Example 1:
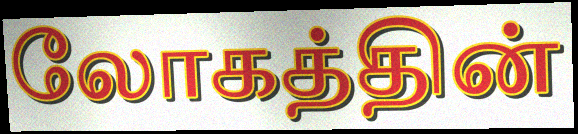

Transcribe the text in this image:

லோகத்தின்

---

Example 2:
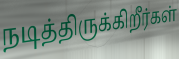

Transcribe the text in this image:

நடித்திருக்கிறீர்கள்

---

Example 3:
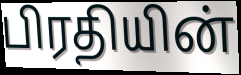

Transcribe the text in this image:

பிரதியின்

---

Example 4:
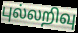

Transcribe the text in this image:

புல்லறிவு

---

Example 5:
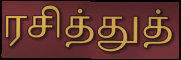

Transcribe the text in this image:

ரசித்துத்